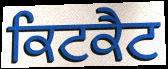
ਕਿਟਕੈਟ